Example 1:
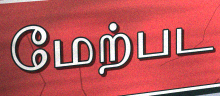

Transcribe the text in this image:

மேற்பட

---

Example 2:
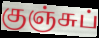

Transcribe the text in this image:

குஞ்சுப்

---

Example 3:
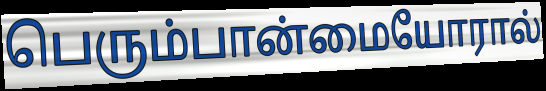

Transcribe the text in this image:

பெரும்பான்மையோரால்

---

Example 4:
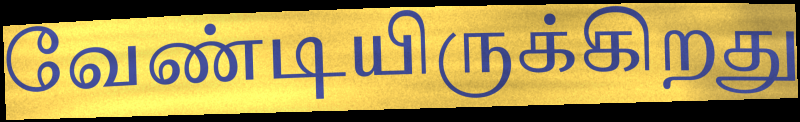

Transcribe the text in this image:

வேண்டியிருக்கிறது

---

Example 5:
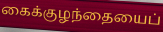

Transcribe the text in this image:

கைக்குழந்தையைப்